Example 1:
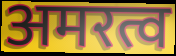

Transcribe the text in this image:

अमरत्व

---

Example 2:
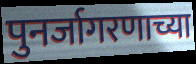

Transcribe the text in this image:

पुनर्जागरणाच्या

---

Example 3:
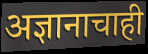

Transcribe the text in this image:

अज्ञानाचाही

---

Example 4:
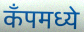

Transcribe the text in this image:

कॅंपमध्ये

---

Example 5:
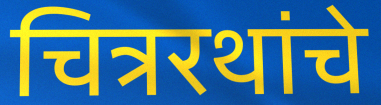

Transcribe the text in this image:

चित्ररथांचे